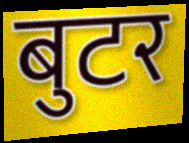
बुटर